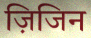
ज़िजिन